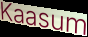
Kaasum